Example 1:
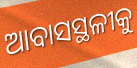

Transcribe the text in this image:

ଆବାସସ୍ଥଳୀକୁ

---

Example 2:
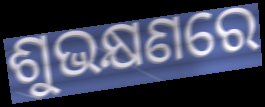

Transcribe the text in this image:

ଶୁଭକ୍ଷଣରେ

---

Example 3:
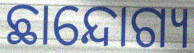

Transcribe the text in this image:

ଛାନ୍ଦୋଗ୍ୟ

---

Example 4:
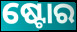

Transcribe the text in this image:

ଷ୍ଟୋର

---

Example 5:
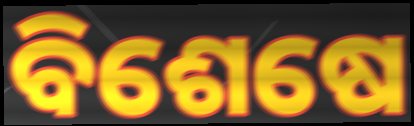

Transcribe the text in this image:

ବିଶେଷେ